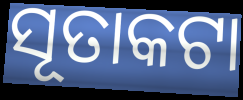
ସୂତାକଟା